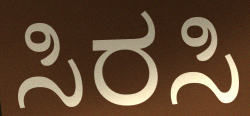
ಸಿರಸಿ